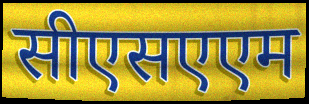
सीएसएएम